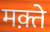
मक़्ते